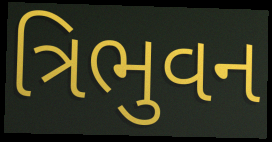
ત્રિભુવન